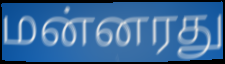
மன்னரது